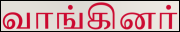
வாங்கினர்